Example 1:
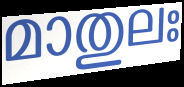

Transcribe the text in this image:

മാതുലഃ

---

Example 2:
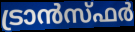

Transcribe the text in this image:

ട്രാൻസ്ഫർ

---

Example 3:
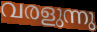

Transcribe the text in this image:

വരളുന്നു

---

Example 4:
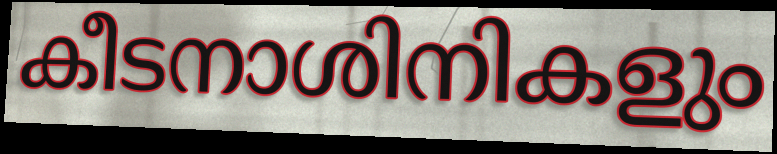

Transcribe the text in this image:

കീടനാശിനികളും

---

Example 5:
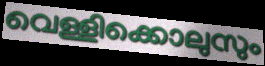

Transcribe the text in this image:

വെള്ളിക്കൊലുസും